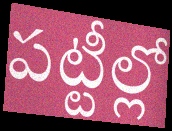
పట్టీల్లో